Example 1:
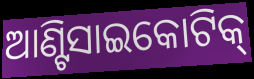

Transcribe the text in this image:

ଆଣ୍ଟିସାଇକୋଟିକ୍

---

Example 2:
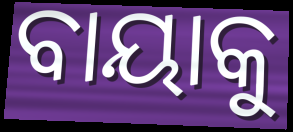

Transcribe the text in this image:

ବାୟାକୁ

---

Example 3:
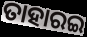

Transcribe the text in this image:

ତାହାରଇ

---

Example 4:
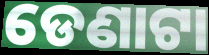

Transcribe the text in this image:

ଡେଣାଟା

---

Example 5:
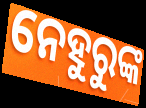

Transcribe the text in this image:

ନେହୁରୁଙ୍କ